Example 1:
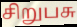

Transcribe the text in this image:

சிறுபசு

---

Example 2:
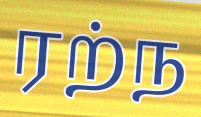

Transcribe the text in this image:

ரற்ந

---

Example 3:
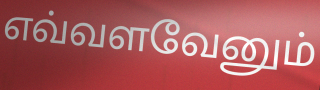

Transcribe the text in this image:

எவ்வளவேனும்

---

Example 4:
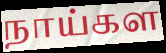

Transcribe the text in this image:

நாய்கள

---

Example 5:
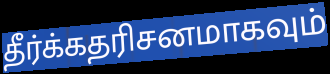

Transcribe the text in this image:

தீர்க்கதரிசனமாகவும்